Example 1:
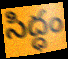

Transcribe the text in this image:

సిద్ధం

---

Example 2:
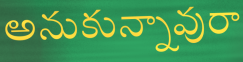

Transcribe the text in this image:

అనుకున్నావురా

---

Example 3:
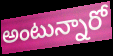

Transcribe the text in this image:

అంటున్నారో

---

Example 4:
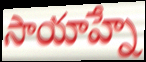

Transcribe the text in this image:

సాయాహ్నే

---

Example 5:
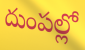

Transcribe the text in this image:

దుంపల్లో